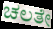
ಚಲತೇ